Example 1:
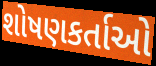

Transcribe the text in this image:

શોષણકર્તાઓ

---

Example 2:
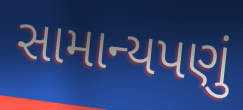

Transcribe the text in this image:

સામાન્યપણું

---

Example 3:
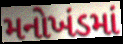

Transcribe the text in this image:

મનોખંડમાં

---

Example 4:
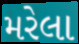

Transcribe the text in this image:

મરેલા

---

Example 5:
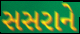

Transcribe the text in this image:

સસરાને